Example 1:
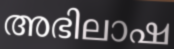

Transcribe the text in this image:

അഭിലാഷ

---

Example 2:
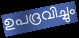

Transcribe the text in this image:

ഉപദ്രവിച്ചും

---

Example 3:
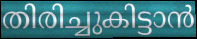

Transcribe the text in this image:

തിരിച്ചുകിട്ടാൻ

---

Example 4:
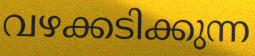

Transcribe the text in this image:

വഴക്കടിക്കുന്ന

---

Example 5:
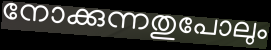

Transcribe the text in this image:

നോക്കുന്നതുപോലും